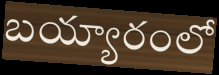
బయ్యారంలో